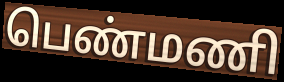
பெண்மணி